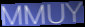
MMUY